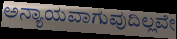
ಅನ್ಯಾಯವಾಗುವುದಿಲ್ಲವೇ